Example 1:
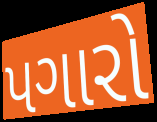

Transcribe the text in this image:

પગારો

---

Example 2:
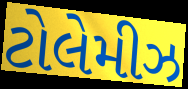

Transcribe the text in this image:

ટોલેમીઝ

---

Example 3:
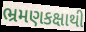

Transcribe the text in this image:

ભ્રમણકક્ષાથી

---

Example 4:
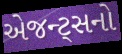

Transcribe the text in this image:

એજન્ટ્સનો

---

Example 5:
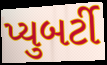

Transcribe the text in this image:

પ્યુબર્ટી